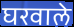
घरवाले